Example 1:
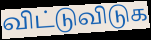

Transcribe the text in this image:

விட்டுவிடுக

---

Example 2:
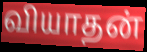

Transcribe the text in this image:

வியாதன்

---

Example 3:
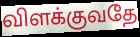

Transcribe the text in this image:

விளக்குவதே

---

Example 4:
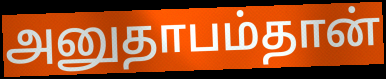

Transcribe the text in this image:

அனுதாபம்தான்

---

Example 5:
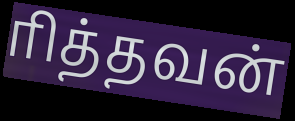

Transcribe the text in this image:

ரித்தவன்